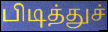
பிடித்துச்